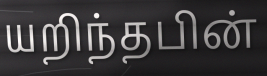
யறிந்தபின்